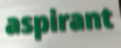
aspirant